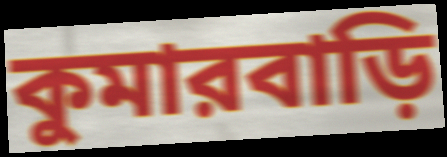
কুমারবাড়ি